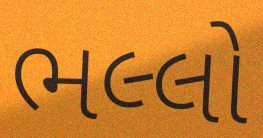
ભલ્લો